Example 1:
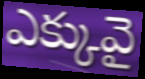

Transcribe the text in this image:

ఎక్కువై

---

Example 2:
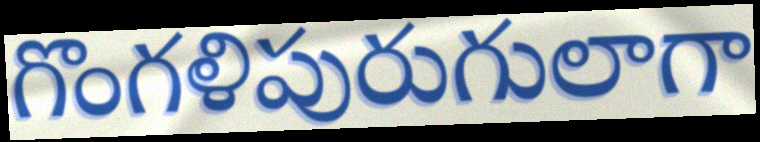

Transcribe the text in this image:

గొంగళిపురుగులాగా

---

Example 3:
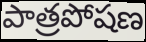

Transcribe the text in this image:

పాత్రపోషణ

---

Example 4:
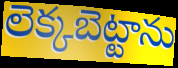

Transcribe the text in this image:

లెక్కబెట్టాను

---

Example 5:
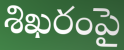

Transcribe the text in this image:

శిఖరంపై